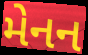
મેનન